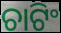
ଚାଟିଂ